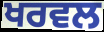
ਖਰਵਲ